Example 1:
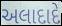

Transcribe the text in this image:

અલાદાદે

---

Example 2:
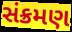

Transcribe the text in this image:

સંક્રમણ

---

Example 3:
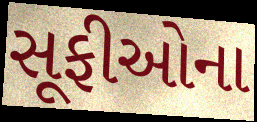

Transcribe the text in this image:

સૂફીઓના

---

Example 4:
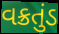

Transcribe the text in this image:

વક્રતુંડ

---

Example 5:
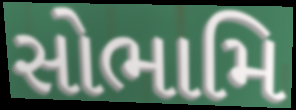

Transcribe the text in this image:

સોભામિ